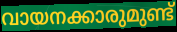
വായനക്കാരുമുണ്ട്